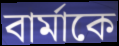
বার্মাকে